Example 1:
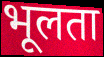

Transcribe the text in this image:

भूलता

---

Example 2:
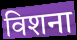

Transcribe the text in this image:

विशना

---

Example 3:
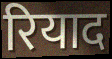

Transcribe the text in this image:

रियाद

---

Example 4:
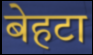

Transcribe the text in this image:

बेहटा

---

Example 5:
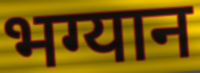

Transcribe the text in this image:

भग्यान